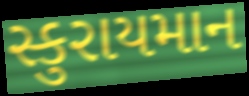
સ્કુરાયમાન